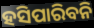
ହସିପାରିବନି